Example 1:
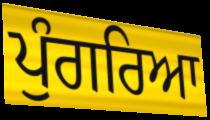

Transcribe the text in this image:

ਪੁੰਗਰਿਆ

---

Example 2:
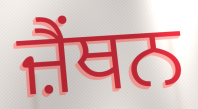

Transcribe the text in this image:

ਜ਼ੈਂਥਨ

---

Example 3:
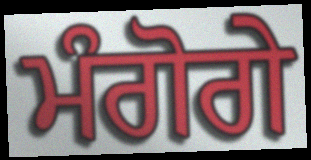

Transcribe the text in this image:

ਮੰਗੋਗੇ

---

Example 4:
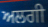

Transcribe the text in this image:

ਅਲਗੀ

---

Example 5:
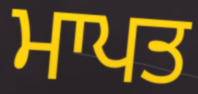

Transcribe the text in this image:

ਮਾਪਤ